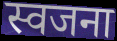
स्वजना